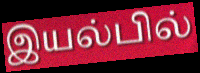
இயல்பில்